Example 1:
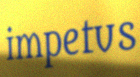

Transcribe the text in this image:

impetus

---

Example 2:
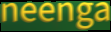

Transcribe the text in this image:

neenga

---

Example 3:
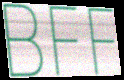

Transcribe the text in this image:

BFF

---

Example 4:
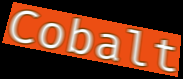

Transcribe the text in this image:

Cobalt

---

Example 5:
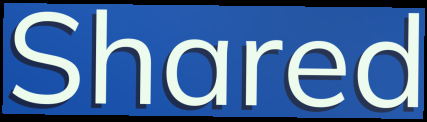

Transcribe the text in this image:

Shared